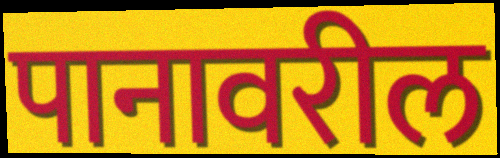
पानावरील